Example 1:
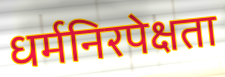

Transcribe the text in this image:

धर्मनिरपेक्षता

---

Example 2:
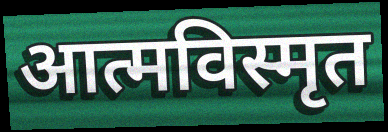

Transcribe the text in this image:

आत्मविस्मृत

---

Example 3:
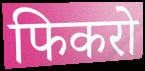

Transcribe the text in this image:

फिकरो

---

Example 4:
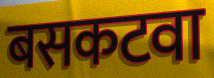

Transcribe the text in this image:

बसकटवा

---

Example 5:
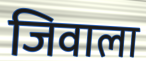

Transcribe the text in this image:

जिवाला